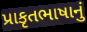
પ્રાકૃતભાષાનું